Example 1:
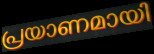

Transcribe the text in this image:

പ്രയാണമായി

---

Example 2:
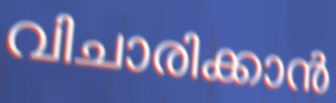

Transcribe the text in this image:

വിചാരിക്കാൻ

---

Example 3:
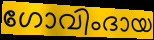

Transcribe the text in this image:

ഗോവിംദായ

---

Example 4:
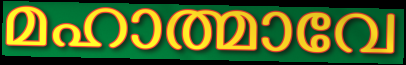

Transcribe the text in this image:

മഹാത്മാവേ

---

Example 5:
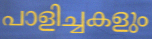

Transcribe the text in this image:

പാളിച്ചകളും